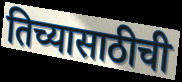
तिच्यासाठीची